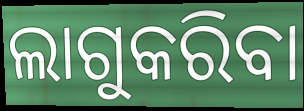
ଲାଗୁକରିବା